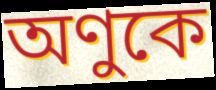
অণুকে